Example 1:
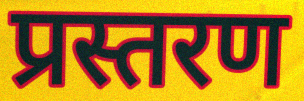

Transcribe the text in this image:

प्रस्तरण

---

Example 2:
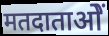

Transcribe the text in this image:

मतदाताओें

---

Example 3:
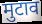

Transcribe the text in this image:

मुटाव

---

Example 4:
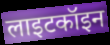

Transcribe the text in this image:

लाइटकॉइन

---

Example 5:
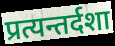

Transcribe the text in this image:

प्रत्यन्तर्दशा